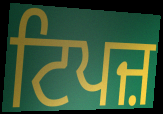
ਟਿਪਜ਼